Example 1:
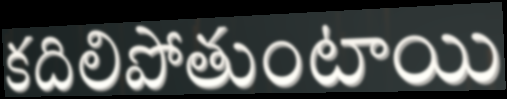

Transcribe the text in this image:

కదిలిపోతుంటాయి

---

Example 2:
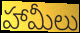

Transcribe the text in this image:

హామీలు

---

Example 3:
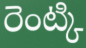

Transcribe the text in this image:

రెంట్కి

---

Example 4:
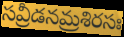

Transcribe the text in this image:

సవ్రీడనమ్రశిరసః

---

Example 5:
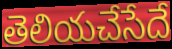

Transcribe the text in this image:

తెలియచేసేదే